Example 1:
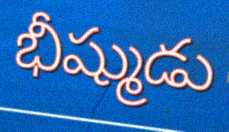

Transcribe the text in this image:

భీష్ముడు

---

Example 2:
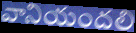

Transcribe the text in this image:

వానియందలి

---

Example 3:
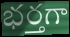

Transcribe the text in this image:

భర్తగా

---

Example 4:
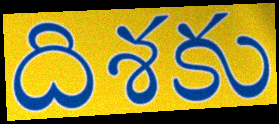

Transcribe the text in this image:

దిశకు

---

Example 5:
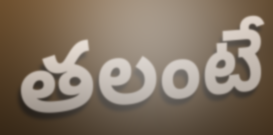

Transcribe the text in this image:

తలంటే